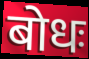
बोधः